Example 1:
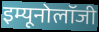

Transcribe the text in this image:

इम्यूनोलॉजी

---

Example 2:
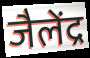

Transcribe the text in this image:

जैलेंद्र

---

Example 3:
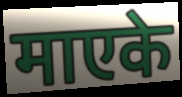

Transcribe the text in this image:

माएके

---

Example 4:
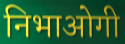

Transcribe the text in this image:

निभाओगी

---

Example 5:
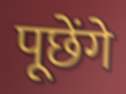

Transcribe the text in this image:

पूछेंगे